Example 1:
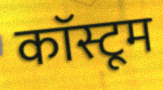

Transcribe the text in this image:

कॉस्टूम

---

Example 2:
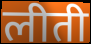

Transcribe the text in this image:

लीती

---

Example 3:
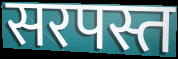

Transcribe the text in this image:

सरपस्त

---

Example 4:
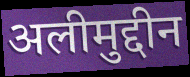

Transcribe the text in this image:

अलीमुद्दीन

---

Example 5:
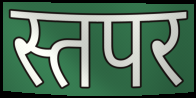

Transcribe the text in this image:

स्तपर